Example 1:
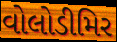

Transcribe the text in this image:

વોલોડીમિર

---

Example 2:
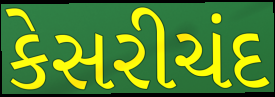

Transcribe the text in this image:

કેસરીચંદ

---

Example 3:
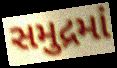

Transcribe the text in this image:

સમુદ્રમાં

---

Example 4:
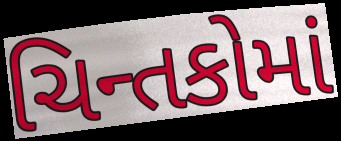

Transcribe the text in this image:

ચિન્તકોમાં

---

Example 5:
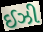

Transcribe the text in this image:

ઈઝી